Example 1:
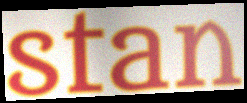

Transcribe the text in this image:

stan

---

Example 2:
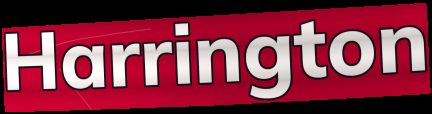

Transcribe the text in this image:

Harrington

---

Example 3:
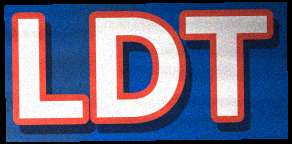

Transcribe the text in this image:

LDT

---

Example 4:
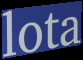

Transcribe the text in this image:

lota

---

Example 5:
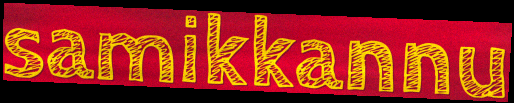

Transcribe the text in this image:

samikkannu